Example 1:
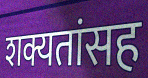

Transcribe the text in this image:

शक्यतांसह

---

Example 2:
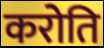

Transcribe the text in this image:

करोति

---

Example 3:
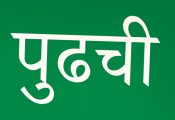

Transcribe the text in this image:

पुढची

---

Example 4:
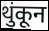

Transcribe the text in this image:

थुंकून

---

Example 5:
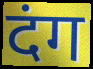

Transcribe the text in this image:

दंग